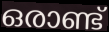
ഒരാണ്ട്